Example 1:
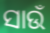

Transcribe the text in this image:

ସାଉଁ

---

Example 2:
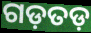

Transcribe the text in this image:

ଗଡ଼ତଡ଼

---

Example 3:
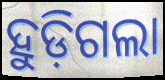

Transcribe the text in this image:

ହୁଡ଼ିଗଲା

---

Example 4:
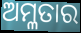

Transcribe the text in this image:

ଅମ୍ଳତାର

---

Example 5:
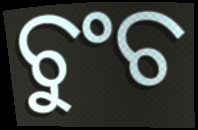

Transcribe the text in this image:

ଚୁଂଚ